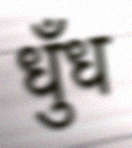
धुँध